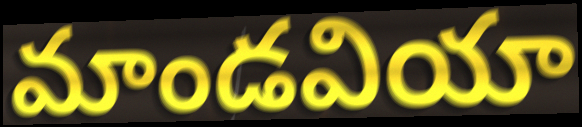
మాండవియా